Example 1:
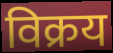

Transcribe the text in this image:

विक्रय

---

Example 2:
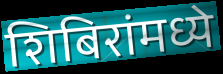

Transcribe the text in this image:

शिबिरांमध्ये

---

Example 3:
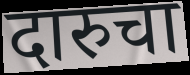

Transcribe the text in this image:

दारुचा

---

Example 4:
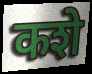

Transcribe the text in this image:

कशे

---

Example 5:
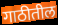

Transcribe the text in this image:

गाठीतील